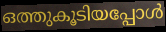
ഒത്തുകൂടിയപ്പോൾ